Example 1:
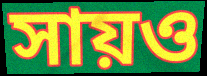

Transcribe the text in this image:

সায়ও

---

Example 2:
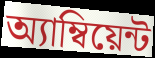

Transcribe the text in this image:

অ্যাম্বিয়েন্ট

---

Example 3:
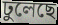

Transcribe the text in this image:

ঢুলেছে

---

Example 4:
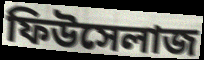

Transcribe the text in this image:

ফিউসেলাজ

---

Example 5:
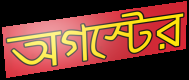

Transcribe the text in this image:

অগস্টের